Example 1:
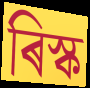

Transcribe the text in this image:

ৰিস্ক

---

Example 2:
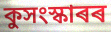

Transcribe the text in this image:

কুসংস্কাৰৰ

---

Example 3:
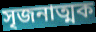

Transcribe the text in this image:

সৃজনাত্মক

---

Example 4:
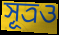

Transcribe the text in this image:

সূত্ৰও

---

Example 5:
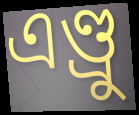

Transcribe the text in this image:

এণ্ড্ৰু